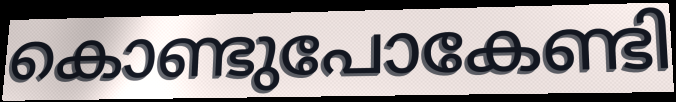
കൊണ്ടുപോകേണ്ടി